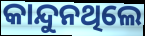
କାନ୍ଦୁନଥିଲେ